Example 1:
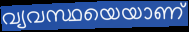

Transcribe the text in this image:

വ്യവസ്ഥയെയാണ്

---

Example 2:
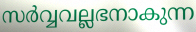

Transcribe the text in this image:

സർവ്വവല്ലഭനാകുന്ന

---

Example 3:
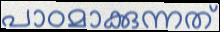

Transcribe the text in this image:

പാഠമാക്കുന്നത്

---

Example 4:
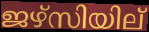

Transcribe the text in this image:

ജഴ്സിയില്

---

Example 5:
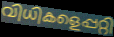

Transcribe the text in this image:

വിധികളെപ്പറ്റി